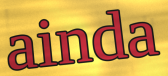
ainda